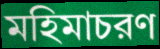
মহিমাচরণ